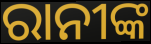
ରାନୀଙ୍କ